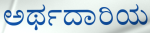
ಅರ್ಥದಾರಿಯ